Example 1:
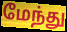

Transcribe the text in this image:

மேந்து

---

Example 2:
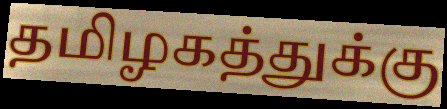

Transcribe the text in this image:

தமிழகத்துக்கு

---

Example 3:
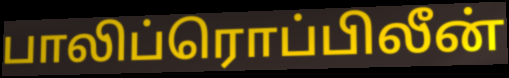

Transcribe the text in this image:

பாலிப்ரொப்பிலீன்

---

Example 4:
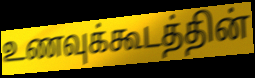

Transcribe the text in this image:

உணவுக்கூடத்தின்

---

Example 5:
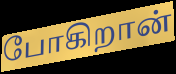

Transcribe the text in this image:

போகிறான்